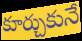
కూర్చుకునే